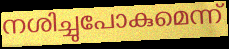
നശിച്ചുപോകുമെന്ന്